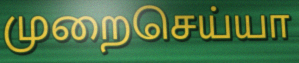
முறைசெய்யா